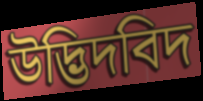
উদ্ভিদবিদ